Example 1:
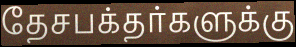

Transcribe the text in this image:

தேசபக்தர்களுக்கு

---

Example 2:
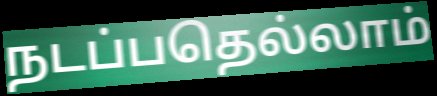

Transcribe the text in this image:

நடப்பதெல்லாம்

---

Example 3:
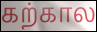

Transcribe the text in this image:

கற்கால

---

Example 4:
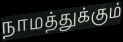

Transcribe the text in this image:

நாமத்துக்கும்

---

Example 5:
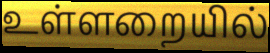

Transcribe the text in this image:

உள்ளறையில்